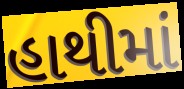
હાથીમાં